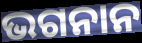
ଭଗନାନ